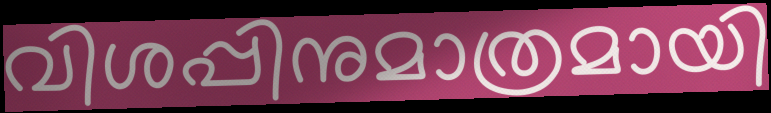
വിശപ്പിനുമാത്രമായി